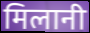
मिलानी